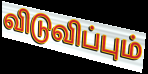
விடுவிப்பும்